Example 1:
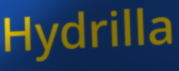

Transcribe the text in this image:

Hydrilla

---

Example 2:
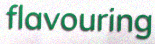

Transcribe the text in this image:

flavouring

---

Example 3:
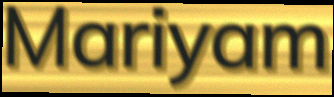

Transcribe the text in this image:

Mariyam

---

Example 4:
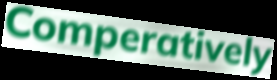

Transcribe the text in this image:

Comperatively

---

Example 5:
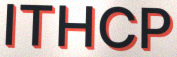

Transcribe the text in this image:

ITHCP